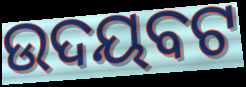
ଉଦୟବଟ